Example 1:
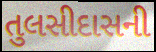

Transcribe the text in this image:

તુલસીદાસની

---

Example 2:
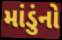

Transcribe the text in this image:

માંડુંનો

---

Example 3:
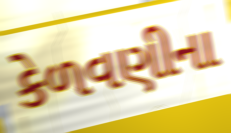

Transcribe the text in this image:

કેળવણીના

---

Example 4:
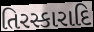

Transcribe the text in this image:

તિરસ્કારાદિ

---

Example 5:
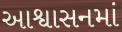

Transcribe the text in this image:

આશ્વાસનમાં